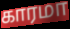
காரமா